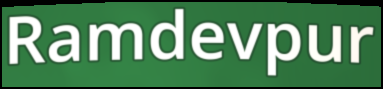
Ramdevpur